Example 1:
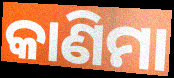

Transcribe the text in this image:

କାଣିମା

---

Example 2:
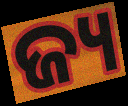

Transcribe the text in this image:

ଜ୍ୟ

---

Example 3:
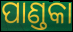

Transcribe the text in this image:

ପାଣ୍ଡକା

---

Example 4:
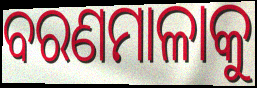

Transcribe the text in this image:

ବରଣମାଳାକୁ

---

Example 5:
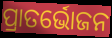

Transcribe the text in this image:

ପ୍ରାତର୍ଭୋଜନ